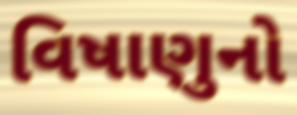
વિષાણુનો